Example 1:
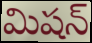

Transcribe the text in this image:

మిషన్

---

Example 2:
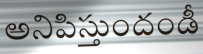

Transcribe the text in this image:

అనిపిస్తుందండీ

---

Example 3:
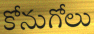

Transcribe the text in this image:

కోనుగోలు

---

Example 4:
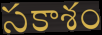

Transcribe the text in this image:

సకాశం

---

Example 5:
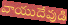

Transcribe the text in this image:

వాయుదేవుడి